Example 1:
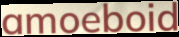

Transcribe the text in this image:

amoeboid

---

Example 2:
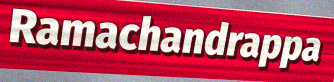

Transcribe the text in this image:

Ramachandrappa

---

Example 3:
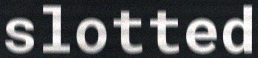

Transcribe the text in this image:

slotted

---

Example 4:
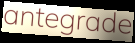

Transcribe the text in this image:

antegrade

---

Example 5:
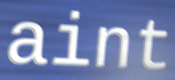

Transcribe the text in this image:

aint